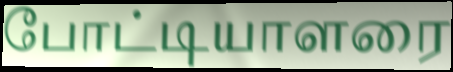
போட்டியாளரை